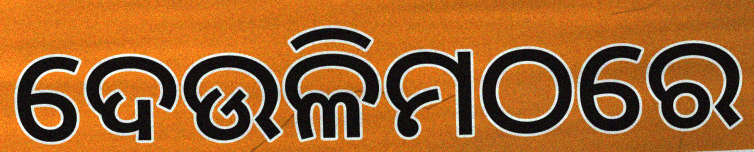
ଦେଉଳିମଠରେ